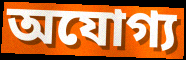
অযোগ্য